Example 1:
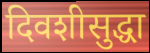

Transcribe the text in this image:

दिवशीसुद्धा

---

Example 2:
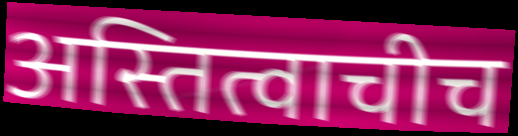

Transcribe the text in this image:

अस्तित्वाचीच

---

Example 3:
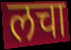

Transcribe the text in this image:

लचा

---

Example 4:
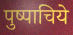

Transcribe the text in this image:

पुष्पाचिये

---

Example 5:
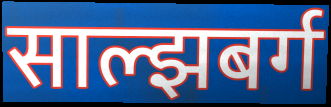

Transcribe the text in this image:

साल्झबर्ग